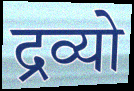
द्रव्यो